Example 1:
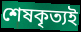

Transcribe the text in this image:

শেষকৃত্যই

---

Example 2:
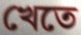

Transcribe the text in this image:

খেতে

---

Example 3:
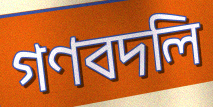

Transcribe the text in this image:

গণবদলি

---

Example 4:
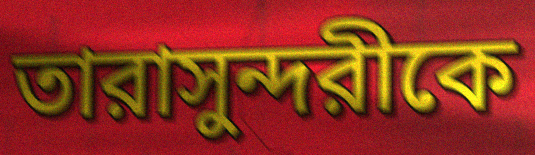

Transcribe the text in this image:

তারাসুন্দরীকে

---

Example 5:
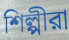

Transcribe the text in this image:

শিল্পীরা